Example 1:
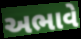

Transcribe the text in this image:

અભાવે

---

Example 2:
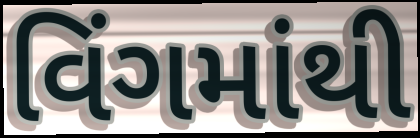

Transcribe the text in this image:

વિંગમાંથી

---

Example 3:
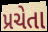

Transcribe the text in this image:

પ્રચેતા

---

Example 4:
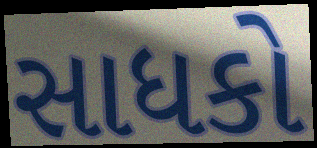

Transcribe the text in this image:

સાધકો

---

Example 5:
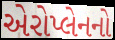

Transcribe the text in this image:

એરોપ્લેનનો